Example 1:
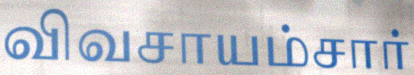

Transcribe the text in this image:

விவசாயம்சார்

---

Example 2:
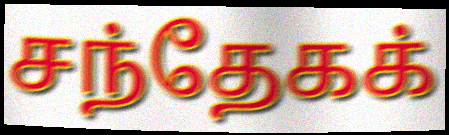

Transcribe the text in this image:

சந்தேகக்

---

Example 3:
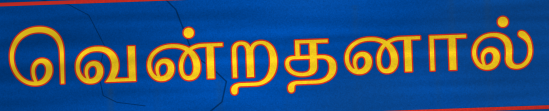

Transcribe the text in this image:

வென்றதனால்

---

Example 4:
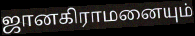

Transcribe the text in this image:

ஜானகிராமனையும்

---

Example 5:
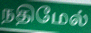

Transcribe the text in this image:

நதிமேல்